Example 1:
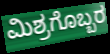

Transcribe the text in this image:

ಮಿಶ್ರಗೊಬ್ಬರ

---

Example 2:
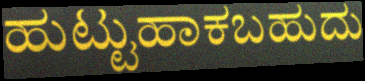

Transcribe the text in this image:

ಹುಟ್ಟುಹಾಕಬಹುದು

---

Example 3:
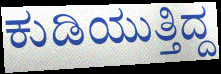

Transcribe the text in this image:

ಕುಡಿಯುತ್ತಿದ್ದ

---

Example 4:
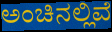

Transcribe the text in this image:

ಅಂಚಿನಲ್ಲಿವೆ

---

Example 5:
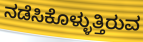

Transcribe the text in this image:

ನಡೆಸಿಕೊಳ್ಳುತ್ತಿರುವ